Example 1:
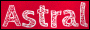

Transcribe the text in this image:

Astral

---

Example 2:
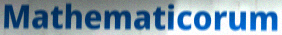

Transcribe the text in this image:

Mathematicorum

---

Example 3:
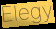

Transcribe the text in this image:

Elegy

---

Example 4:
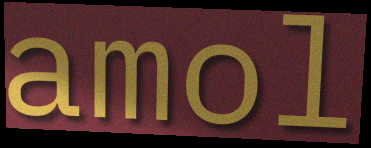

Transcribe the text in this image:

amol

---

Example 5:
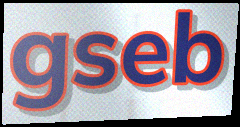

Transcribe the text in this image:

gseb